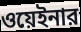
ওয়েইনার